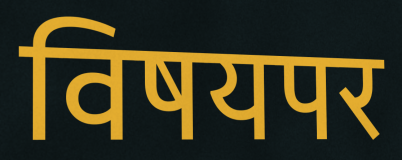
विषयपर